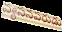
వ్యసనపరుడు